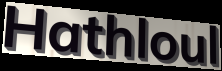
Hathloul